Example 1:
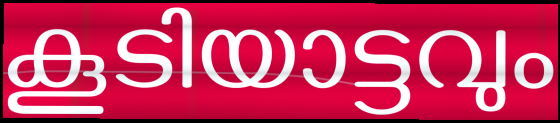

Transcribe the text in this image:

കൂടിയാട്ടവും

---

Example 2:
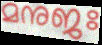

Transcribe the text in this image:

മനുജഃ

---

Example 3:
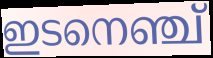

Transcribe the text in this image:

ഇടനെഞ്ച്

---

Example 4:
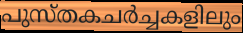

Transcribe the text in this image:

പുസ്തകചർച്ചകളിലും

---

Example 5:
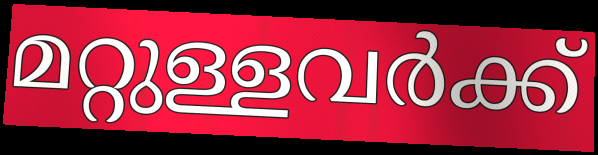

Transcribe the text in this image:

മറ്റുള്ളവർക്ക്